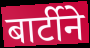
बार्टीने